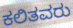
ಕಲಿತವರು